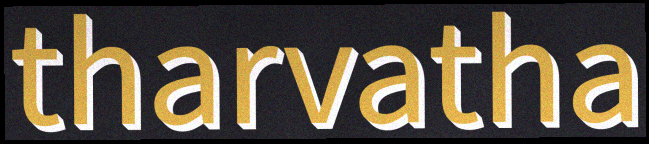
tharvatha